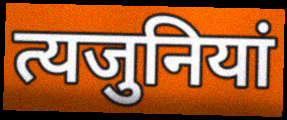
त्यजुनियां